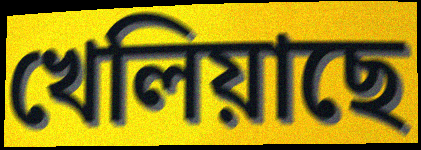
খেলিয়াছে